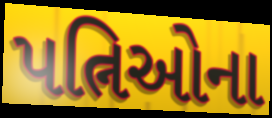
પત્નિઓના